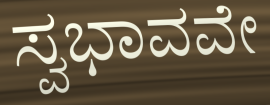
ಸ್ವಭಾವವೇ